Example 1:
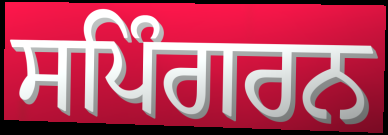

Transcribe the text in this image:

ਸਪਿੰਗਰਨ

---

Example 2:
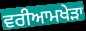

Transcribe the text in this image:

ਵਰੀਆਮਖੇੜਾ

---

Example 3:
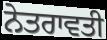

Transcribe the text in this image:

ਨੇਤਰਾਵਤੀ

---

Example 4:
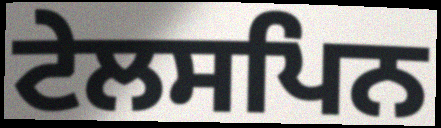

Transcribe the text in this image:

ਟੇਲਸਪਿਨ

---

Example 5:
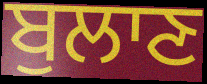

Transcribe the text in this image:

ਬੁਲਾਣ